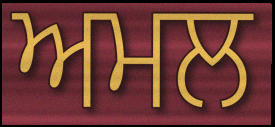
ਅਮਲ